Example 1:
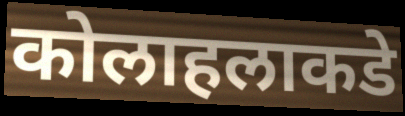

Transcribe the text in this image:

कोलाहलाकडे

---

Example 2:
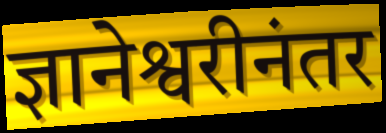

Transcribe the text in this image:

ज्ञानेश्वरीनंतर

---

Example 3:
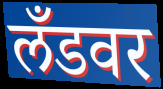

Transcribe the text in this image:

लँडवर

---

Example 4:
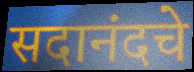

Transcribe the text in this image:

सदानंदचे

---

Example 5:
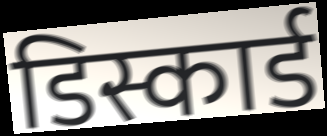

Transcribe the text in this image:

डिस्कार्ड